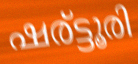
ഷര്ട്ടൂരി